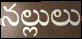
నల్లులు